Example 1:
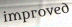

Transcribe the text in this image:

improved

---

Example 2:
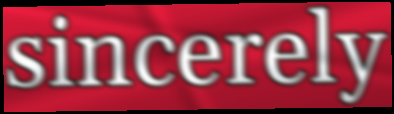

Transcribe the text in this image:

sincerely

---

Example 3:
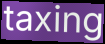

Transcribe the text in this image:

taxing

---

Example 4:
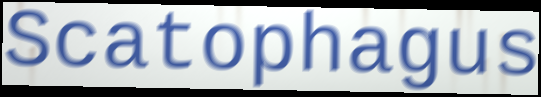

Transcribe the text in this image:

Scatophagus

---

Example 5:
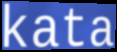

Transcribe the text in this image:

kata